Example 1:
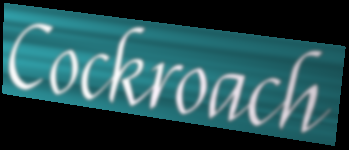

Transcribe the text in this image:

Cockroach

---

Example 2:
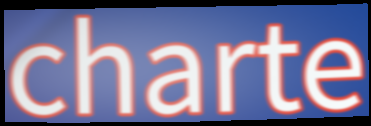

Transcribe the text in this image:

charte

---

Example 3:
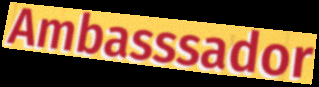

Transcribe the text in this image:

Ambasssador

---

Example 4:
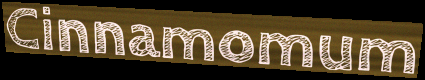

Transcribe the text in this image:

Cinnamomum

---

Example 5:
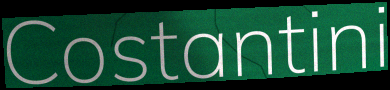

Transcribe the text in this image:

Costantini